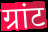
ग्रांट